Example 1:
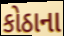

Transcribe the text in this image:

કોઠાના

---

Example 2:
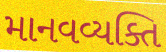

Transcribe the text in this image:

માનવવ્યક્તિ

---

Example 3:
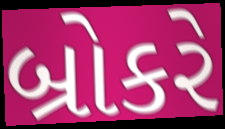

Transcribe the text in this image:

બ્રોકરે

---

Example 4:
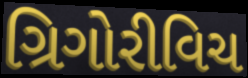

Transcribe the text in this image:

ગ્રિગોરીવિચ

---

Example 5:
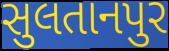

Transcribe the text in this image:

સુલતાનપુર